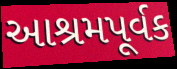
આશ્રમપૂર્વક